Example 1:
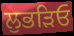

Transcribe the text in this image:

ਲੁਭੜਿਓ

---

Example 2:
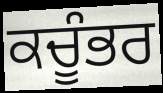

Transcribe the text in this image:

ਕਚੂੰਭਰ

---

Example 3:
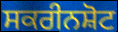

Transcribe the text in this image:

ਸਕਰੀਨਸ਼ੋਟ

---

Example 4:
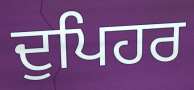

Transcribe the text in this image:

ਦੁਪਿਹਰ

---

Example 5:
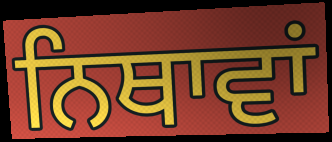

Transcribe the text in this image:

ਨਿਥਾਵਾਂ